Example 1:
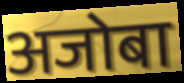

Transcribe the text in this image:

अजोबा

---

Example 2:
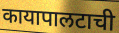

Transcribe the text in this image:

कायापालटाची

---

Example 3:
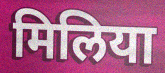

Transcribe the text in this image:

मिलिया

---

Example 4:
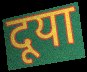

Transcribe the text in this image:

दूया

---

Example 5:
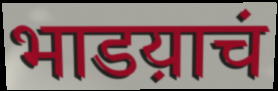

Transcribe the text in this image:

भाडय़ाचं